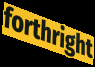
forthright